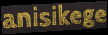
anisikege